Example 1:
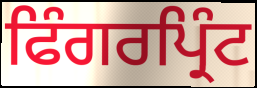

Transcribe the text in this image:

ਫਿੰਗਰਪ੍ਰਿੰਟ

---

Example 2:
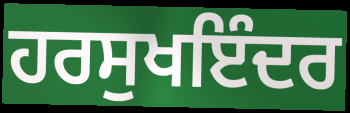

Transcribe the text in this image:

ਹਰਸੁਖਇੰਦਰ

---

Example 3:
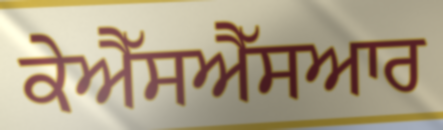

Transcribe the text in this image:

ਕੇਐੱਸਐੱਸਆਰ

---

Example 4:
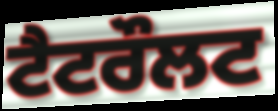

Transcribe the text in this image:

ਟੈਟਰੌਲਟ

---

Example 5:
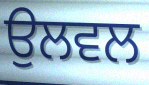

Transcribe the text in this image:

ਉਲਵਲ